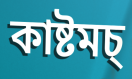
কাষ্টমচ্